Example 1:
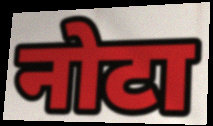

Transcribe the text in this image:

नोटा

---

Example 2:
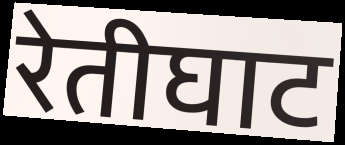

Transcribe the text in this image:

रेतीघाट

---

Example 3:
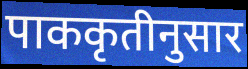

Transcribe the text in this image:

पाककृतीनुसार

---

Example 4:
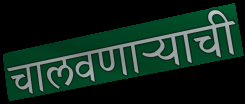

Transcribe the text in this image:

चालवणाऱ्याची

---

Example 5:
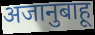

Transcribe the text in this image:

अजानुबाहू